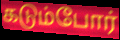
கடும்போர்